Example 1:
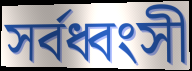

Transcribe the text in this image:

সর্বধ্বংসী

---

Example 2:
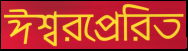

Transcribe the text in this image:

ঈশ্বরপ্রেরিত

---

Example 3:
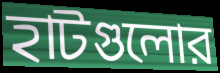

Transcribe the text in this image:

হাটগুলোর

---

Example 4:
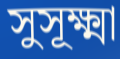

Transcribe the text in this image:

সুসূক্ষ্মা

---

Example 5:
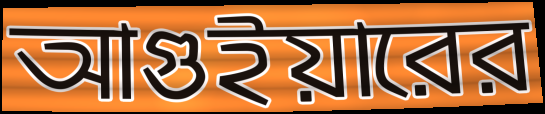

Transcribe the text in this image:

আগুইয়ারের